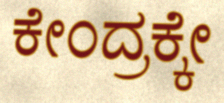
ಕೇಂದ್ರಕ್ಕೇ